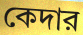
কেদার